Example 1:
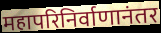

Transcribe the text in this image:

महापरिनिर्वाणानंतर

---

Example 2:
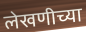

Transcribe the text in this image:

लेखणीच्या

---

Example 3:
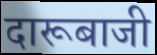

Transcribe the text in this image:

दारूबाजी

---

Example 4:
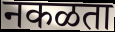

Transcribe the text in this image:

नकळता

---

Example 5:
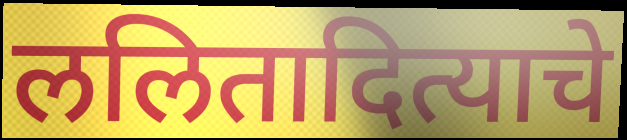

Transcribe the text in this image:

ललितादित्याचे